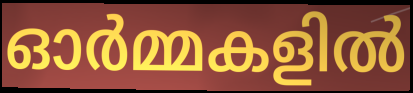
ഓർമ്മകളിൽ